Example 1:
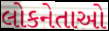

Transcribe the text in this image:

લોકનેતાઓ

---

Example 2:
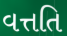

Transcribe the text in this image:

વત્તતિ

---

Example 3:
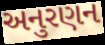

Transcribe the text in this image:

અનુરણન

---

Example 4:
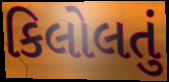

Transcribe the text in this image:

કિલોલતું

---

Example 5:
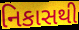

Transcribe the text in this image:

નિકાસથી